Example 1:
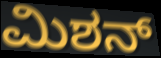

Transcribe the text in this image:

ಮಿಶನ್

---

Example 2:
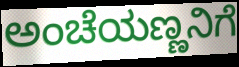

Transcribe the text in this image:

ಅಂಚೆಯಣ್ಣನಿಗೆ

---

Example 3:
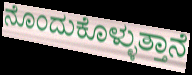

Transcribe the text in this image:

ನೊಂದುಕೊಳ್ಳುತ್ತಾನೆ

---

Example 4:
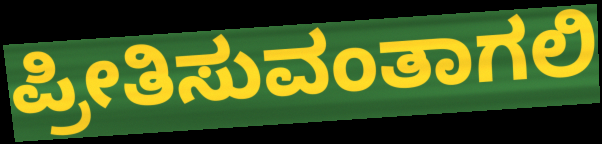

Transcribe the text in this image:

ಪ್ರೀತಿಸುವಂತಾಗಲಿ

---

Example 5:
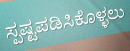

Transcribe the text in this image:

ಸ್ಪಷ್ಟಪಡಿಸಿಕೊಳ್ಳಲು